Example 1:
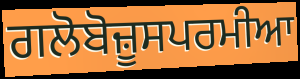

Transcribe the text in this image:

ਗਲੋਬੋਜ਼ੂਸਪਰਮੀਆ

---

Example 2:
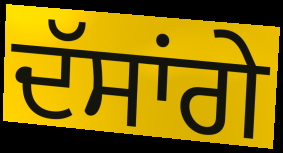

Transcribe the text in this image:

ਦੱਸਾਂਗੇ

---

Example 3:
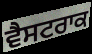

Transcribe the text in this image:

ਵੈਸਟਰਾਕ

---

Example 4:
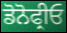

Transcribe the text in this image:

ਡੋਨੋਫ੍ਰੀਓ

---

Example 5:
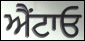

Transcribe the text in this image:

ਐਂਟਾਓ